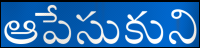
ఆపేసుకుని